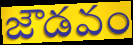
జౌడవం